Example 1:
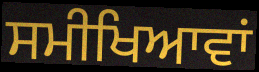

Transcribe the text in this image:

ਸਮੀਖਿਆਵਾਂ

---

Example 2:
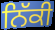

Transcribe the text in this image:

ਨਿੱਕੀ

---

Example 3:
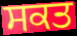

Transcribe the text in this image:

ਸਕਤ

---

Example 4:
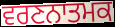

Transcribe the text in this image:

ਵਰਣਨਾਤਮਕ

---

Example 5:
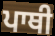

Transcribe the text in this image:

ਪਾਥੀ